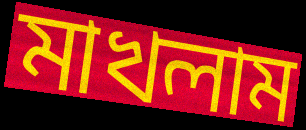
মাখলাম